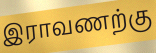
இராவணற்கு